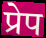
प्रेप